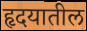
हृदयातील